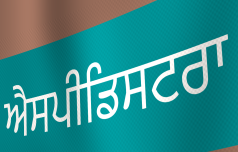
ਐਸਪੀਡਿਸਟਰਾ